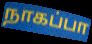
நாகப்பா